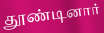
தூண்டினார்